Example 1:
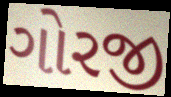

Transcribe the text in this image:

ગોરજી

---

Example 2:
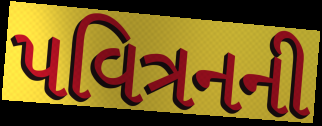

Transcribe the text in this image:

પવિત્રનની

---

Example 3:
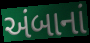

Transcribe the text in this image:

અંબાનાં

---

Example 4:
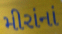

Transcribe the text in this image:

મીરાંનાં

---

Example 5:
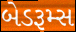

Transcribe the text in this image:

બેડરૂમ્સ